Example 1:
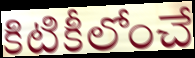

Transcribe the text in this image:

కిటికీలోంచే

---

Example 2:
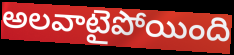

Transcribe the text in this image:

అలవాటైపోయింది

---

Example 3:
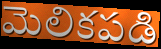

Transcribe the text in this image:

మెలికపడి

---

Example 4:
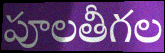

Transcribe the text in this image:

పూలతీగల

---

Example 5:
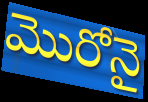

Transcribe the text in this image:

మొరోనై